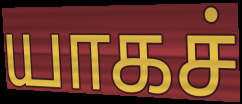
யாகச்